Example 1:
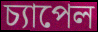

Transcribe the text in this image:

চ্যাপেল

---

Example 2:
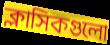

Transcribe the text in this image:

ক্লাসিকগুলো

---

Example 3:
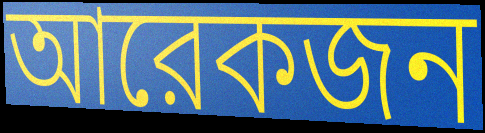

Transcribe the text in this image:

আরেকজন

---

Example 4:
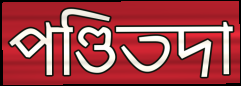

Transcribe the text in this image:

পণ্ডিতদা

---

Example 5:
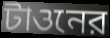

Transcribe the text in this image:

টাওনের